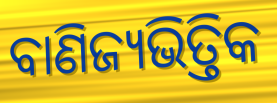
ବାଣିଜ୍ୟଭିତ୍ତିକ